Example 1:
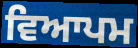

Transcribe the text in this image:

ਵਿਆਪਮ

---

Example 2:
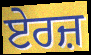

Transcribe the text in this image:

ਏਰਜ਼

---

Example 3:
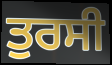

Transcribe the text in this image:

ਤੁਰਸੀ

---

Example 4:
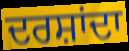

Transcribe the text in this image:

ਦਰਸ਼ਾਂਦਾ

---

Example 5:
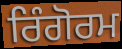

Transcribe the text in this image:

ਰਿੰਗੋਰਮ